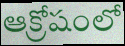
ఆక్రోషంలో